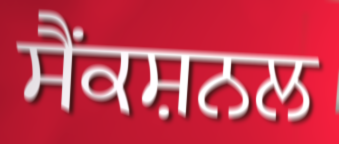
ਸੈਂਕਸ਼ਨਲ